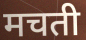
मचती